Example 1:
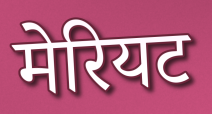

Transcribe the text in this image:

मेरियट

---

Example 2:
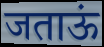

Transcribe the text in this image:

जताऊं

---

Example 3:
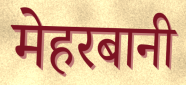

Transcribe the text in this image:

मेहरबानी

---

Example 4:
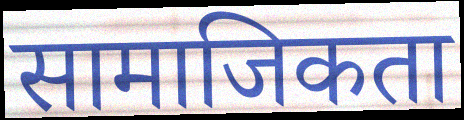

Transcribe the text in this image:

सामाजिकता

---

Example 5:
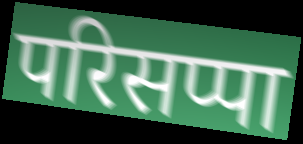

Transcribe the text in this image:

परिसप्पा